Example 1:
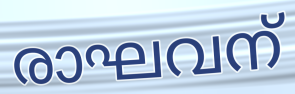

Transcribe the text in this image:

രാഘവന്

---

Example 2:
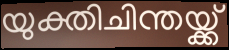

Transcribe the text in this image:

യുക്തിചിന്തയ്ക്ക്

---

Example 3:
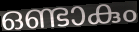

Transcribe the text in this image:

ഒണ്ടാകും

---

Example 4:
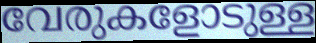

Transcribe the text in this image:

വേരുകളോടുള്ള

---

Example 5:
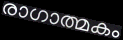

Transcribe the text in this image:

രാഗാത്മകം